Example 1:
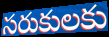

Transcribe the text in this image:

సరుకులకు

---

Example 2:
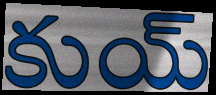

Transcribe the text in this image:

కుయ్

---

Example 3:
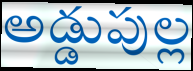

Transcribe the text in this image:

అడ్డుపుల్ల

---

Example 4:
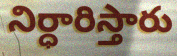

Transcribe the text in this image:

నిర్ధారిస్తారు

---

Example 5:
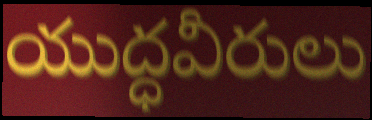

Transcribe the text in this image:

యుద్ధవీరులు